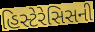
હિસ્ટેરેસિસની